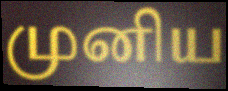
முனிய